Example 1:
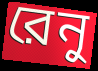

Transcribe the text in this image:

রেনু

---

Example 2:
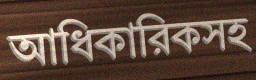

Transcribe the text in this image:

আধিকারিকসহ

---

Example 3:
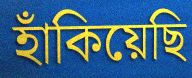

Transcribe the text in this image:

হাঁকিয়েছি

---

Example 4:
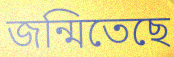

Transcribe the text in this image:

জন্মিতেছে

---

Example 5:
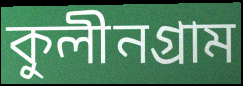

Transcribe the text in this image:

কুলীনগ্রাম